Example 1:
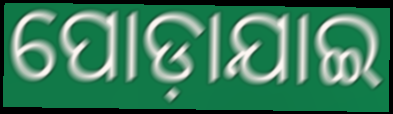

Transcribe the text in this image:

ପୋଡ଼ାଯାଇ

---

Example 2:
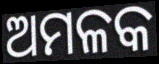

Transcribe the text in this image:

ଅମଳକ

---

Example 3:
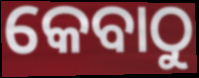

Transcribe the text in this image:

କେବାଠୁ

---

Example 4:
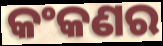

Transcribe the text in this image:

କଂକଣର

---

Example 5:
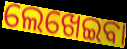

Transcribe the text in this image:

ଲେଖେଇବା